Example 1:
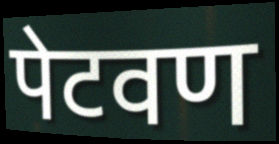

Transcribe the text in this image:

पेटवण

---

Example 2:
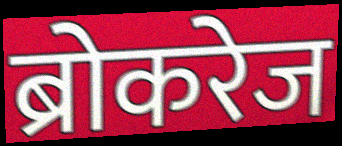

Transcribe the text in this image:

ब्रोकरेज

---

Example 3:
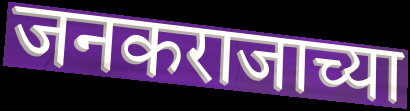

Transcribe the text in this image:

जनकराजाच्या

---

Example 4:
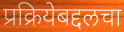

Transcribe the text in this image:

प्रक्रियेबद्दलचा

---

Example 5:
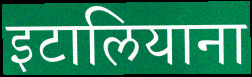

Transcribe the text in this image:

इटालियाना